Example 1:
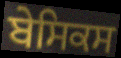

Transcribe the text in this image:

ਬੇਸਿਕਸ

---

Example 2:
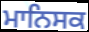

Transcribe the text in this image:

ਮਾਨਿਸਕ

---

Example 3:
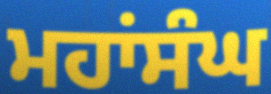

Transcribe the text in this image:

ਮਹਾਂਸੰਘ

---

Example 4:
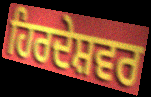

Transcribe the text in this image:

ਹਿਰਦੇਸ਼ਵਰ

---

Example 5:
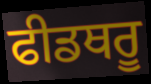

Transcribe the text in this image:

ਫੀਡਥਰੂ